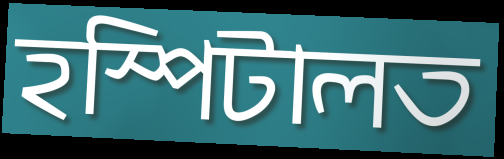
হস্পিটালত